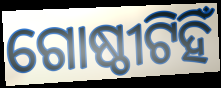
ଗୋଷ୍ଠୀଟିହିଁ